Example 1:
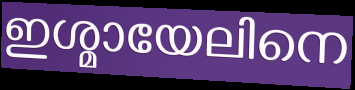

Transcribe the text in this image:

ഇശ്മായേലിനെ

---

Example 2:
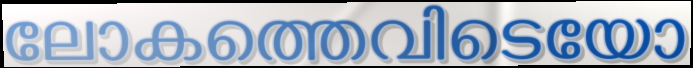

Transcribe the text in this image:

ലോകത്തെവിടെയോ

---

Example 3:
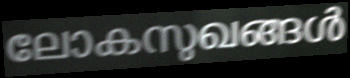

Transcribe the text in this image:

ലോകസുഖങ്ങൾ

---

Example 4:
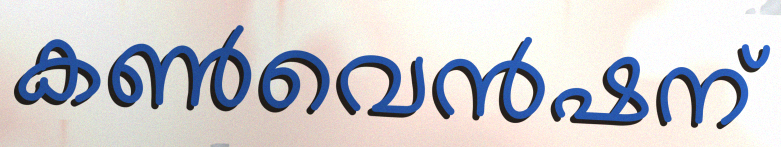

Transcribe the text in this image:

കൺവെൻഷന്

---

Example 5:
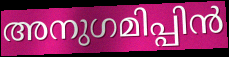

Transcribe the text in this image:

അനുഗമിപ്പിൻ